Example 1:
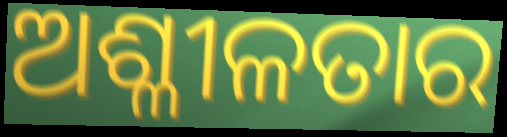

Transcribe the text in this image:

ଅଶ୍ଳୀଳତାର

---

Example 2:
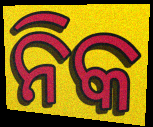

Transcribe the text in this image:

ନିକ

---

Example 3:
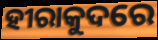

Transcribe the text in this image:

ହୀରାକୁଦରେ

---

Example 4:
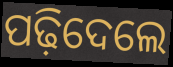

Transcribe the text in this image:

ପଢ଼ିଦେଲେ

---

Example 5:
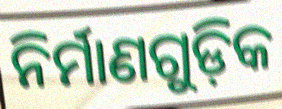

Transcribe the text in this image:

ନିର୍ମାଣଗୁଡ଼ିକ